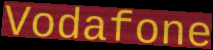
Vodafone